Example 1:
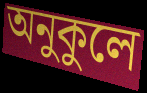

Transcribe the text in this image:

অনুকুলে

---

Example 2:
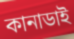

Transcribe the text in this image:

কানাডাই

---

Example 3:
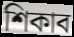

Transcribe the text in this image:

শিকাব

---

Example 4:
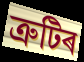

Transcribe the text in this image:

ত্ৰুটিৰ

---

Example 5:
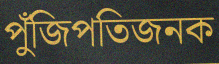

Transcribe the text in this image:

পুঁজিপতিজনক